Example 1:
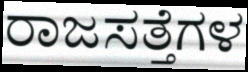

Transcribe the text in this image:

ರಾಜಸತ್ತೆಗಳ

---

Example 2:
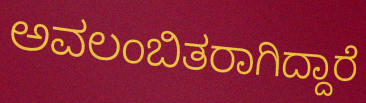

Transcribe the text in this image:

ಅವಲಂಬಿತರಾಗಿದ್ದಾರೆ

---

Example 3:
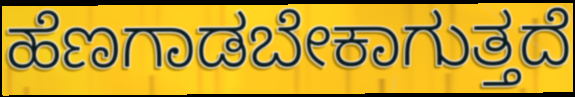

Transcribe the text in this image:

ಹೆಣಗಾಡಬೇಕಾಗುತ್ತದೆ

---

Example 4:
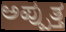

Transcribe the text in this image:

ಅಪ್ಪುತ್ತ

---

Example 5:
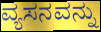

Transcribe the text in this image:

ವ್ಯಸನವನ್ನು